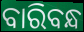
ବାରିବନ୍ଧ